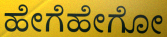
ಹೇಗೆಹೇಗೋ